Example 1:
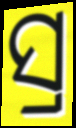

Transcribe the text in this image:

ସ୍ର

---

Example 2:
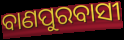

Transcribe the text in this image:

ବାଣପୁରବାସୀ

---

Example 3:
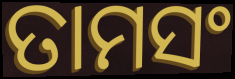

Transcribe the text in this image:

ତାମସଂ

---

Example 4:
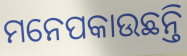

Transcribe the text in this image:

ମନେପକାଉଛନ୍ତି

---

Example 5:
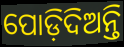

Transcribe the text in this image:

ପୋଡ଼ିଦିଅନ୍ତି